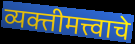
व्यक्तीमत्त्वाचे